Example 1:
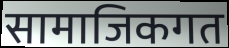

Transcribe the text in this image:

सामाजिकगत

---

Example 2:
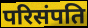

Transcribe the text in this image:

परिसंपति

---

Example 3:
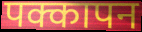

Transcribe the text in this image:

पक्कापन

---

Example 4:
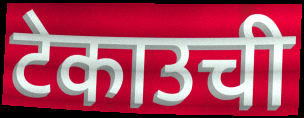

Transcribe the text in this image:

टेकाउची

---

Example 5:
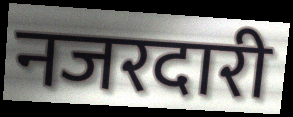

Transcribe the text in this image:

नजरदारी